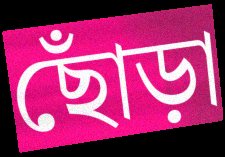
ছোঁড়া